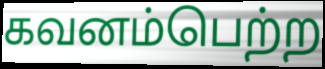
கவனம்பெற்ற